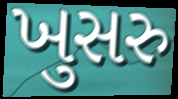
ખુસરુ